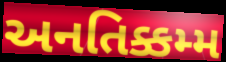
અનતિક્કમ્મ